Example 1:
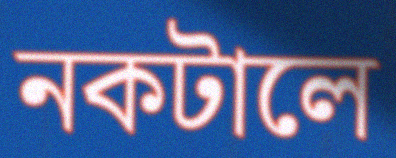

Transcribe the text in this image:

নকটালে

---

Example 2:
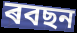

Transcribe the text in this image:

ৰবছন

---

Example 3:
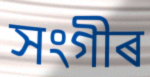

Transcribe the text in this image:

সংগীৰ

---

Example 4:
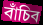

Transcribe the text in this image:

বাঁচিব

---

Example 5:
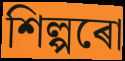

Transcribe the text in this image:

শিল্পৰো